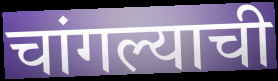
चांगल्याची